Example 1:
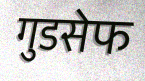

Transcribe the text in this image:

गुडसेफ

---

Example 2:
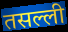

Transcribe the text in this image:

तसल्‍ली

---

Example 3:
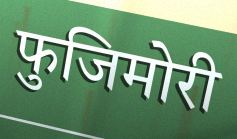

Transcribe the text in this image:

फुजिमोरी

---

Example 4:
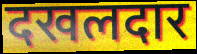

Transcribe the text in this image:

दखलदार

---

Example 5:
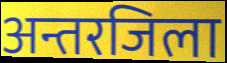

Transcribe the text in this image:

अन्तरजिला